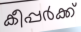
കീപ്പർക്ക്